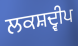
ਲਕਸ਼ਦ੍ਵੀਪ